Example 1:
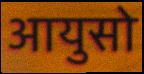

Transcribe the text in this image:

आयुसो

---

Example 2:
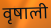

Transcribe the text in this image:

वृषाली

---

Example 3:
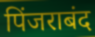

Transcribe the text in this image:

पिंजराबंद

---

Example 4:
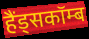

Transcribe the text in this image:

हैंड्सकॉम्ब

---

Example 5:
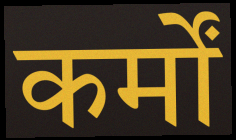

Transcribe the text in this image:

कर्मों